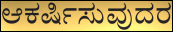
ಆಕರ್ಷಿಸುವುದರ